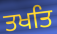
ਤਖਤਿ